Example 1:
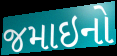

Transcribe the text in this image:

જમાઇનો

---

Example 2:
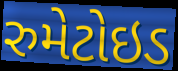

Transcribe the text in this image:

રુમેટોઇડ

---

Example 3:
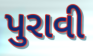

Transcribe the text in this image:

પુરાવી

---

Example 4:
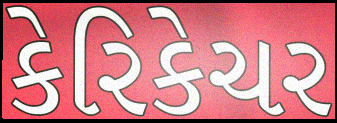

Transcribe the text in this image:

કેરિકેચર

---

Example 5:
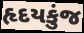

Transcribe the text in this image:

હૃદયકુંજ